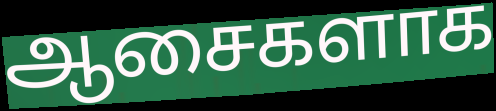
ஆசைகளாக